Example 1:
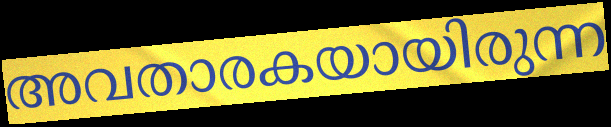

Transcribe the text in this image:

അവതാരകയായിരുന്ന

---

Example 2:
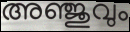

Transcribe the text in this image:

അഞ്ജുവും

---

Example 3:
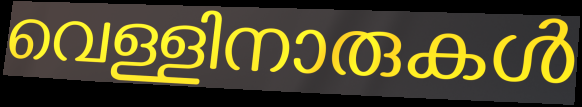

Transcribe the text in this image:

വെള്ളിനാരുകൾ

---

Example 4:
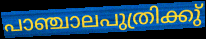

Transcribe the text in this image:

പാഞ്ചാലപുത്രിക്കു്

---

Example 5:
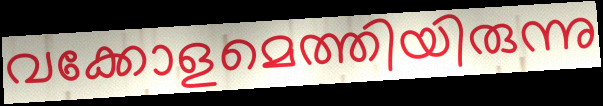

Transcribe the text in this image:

വക്കോളമെത്തിയിരുന്നു